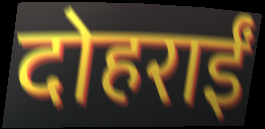
दोहराईं